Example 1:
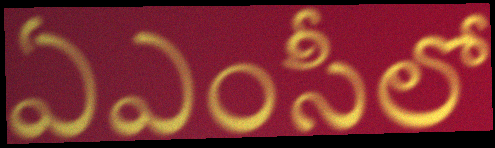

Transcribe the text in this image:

ఏఎంసీలో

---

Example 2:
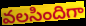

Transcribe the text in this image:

వలసిందిగా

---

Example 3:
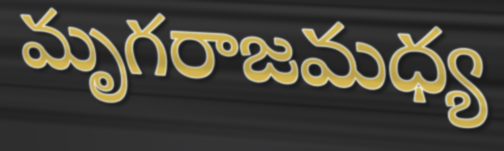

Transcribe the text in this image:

మృగరాజమధ్య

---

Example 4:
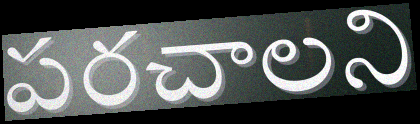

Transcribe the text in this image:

పరచాలని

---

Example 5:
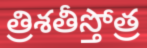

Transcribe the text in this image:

త్రిశతీస్తోత్ర